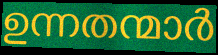
ഉന്നതന്മാർ